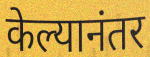
केल्यानंतर